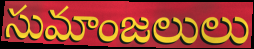
సుమాంజలులు